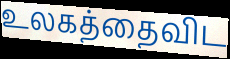
உலகத்தைவிட